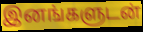
இனங்களுடன்